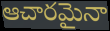
ఆచారమైనా